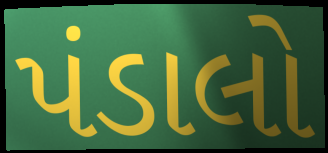
પંડાલો